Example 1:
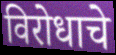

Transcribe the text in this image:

विरोधाचे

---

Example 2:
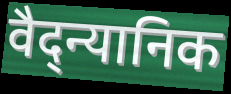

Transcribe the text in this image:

वैद्न्यानिक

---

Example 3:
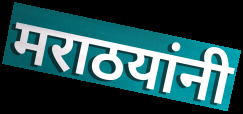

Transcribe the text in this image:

मराठयांनी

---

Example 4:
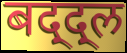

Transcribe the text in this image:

बद्द्ल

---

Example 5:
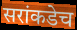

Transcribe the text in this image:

सरांकडेच